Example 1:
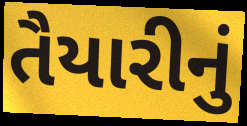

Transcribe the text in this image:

તૈયારીનું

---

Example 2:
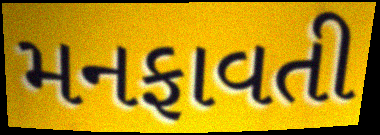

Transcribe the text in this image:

મનફાવતી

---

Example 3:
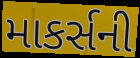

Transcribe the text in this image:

માકર્સની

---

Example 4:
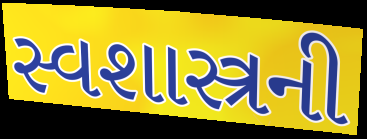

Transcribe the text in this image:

સ્વશાસ્ત્રની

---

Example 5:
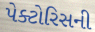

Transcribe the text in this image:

પેક્ટોરિસની